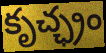
కృచ్ఛ్రం